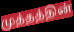
முத்தத்தின்